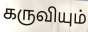
கருவியும்